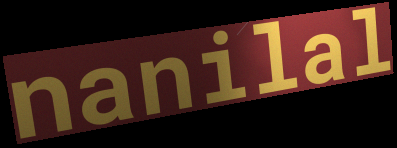
nanilal